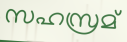
സഹസ്രമ്